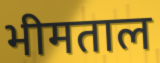
भीमताल